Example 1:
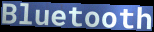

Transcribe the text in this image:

Bluetooth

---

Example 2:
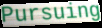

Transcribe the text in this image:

Pursuing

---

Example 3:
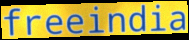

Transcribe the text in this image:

freeindia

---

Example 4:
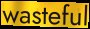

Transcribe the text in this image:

wasteful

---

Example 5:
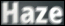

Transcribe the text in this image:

Haze